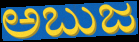
ಅಬುಜ